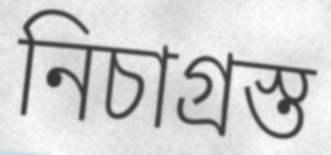
নিচাগ্ৰস্ত